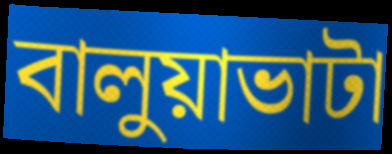
বালুয়াভাটা